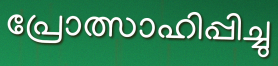
പ്രോത്സാഹിപ്പിച്ചു